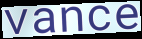
vance